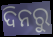
ଦିନରୁ